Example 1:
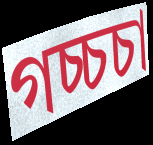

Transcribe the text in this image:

গচ্চচা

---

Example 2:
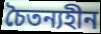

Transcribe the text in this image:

চৈতন্যহীন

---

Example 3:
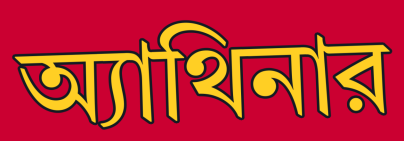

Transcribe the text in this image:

অ্যাথিনার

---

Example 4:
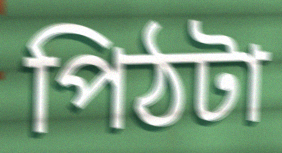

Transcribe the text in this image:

পিঠটা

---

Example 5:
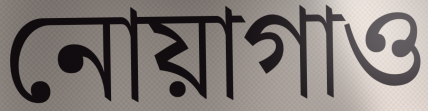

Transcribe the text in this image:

নোয়াগাও